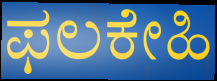
ಫಲಕೇಹಿ